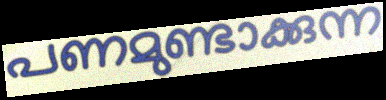
പണമുണ്ടാക്കുന്ന